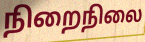
நிறைநிலை